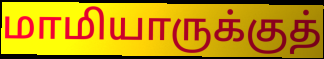
மாமியாருக்குத்